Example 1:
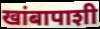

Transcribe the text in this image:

खांबापाशी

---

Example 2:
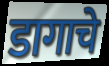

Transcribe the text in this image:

डागाचे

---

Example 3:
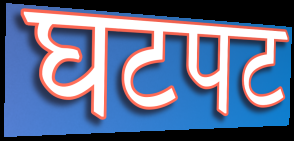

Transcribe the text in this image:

घटपट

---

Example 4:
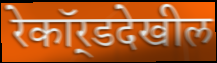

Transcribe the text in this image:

रेकॉर्डदेखील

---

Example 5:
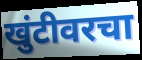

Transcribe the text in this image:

खुंटीवरचा